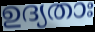
ഉദ്യതാഃ